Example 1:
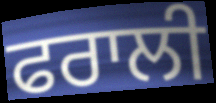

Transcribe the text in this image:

ਫਰਾਲੀ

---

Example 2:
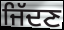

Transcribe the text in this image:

ਜਿੱਦਣ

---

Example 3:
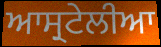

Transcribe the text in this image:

ਆਸ੍ਰਟੇਲੀਆ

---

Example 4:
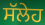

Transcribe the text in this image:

ਸੱਲੇਹ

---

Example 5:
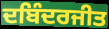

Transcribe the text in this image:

ਦਬਿੰਦਰਜੀਤ